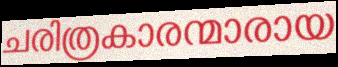
ചരിത്രകാരന്മാരായ